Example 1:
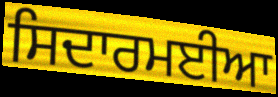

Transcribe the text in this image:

ਸਿਦਾਰਮਈਆ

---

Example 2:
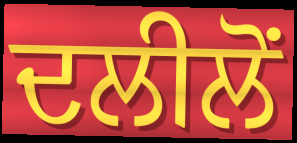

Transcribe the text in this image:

ਦਲੀਲੋਂ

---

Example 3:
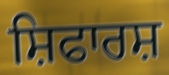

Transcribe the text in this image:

ਸ਼ਿਫਾਰਸ਼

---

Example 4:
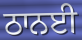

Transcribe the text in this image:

ਠਾਨਈ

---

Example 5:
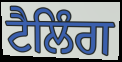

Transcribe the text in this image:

ਟੈਲਿੰਗ